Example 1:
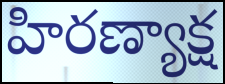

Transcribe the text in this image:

హిరణ్యాక్ష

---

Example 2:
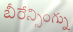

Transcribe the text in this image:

బీరేన్సింగ్ను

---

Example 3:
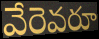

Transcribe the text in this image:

వేరెవరూ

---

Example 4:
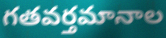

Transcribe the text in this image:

గతవర్తమానాల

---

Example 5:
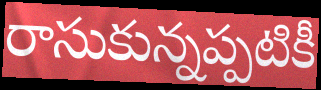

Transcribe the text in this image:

రాసుకున్నప్పటికీ